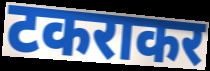
टकराकर